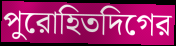
পুরোহিতদিগের